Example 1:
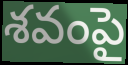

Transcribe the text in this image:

శవంపై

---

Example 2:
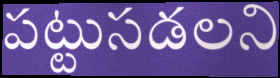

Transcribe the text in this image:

పట్టుసడలని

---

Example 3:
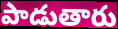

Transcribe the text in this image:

పాడుతారు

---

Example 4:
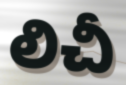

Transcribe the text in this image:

లిచీ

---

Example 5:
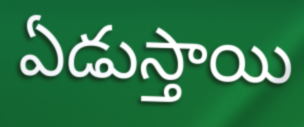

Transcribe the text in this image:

ఏడుస్తాయి